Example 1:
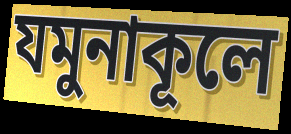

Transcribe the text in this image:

যমুনাকূলে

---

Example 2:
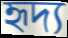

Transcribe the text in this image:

হৃদ্য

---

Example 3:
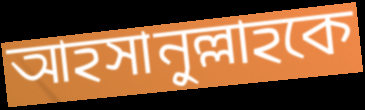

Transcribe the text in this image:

আহসানুল্লাহকে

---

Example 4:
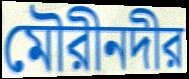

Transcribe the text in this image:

মৌরীনদীর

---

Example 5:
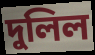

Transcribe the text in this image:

দুলিল